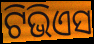
ଟିଭିଏସ